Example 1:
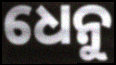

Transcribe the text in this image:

ଧେନୁ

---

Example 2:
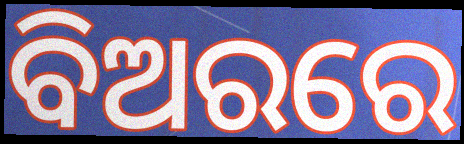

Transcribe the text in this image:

ବିଅରରେ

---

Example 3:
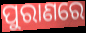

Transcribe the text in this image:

ପୁରାଣରେ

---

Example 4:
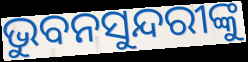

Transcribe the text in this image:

ଭୁବନସୁନ୍ଦରୀଙ୍କୁ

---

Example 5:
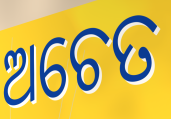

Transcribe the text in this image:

ଅଚେତ